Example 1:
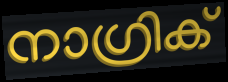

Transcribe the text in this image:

നാഗ്രിക്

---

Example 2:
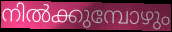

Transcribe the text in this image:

നിൽക്കുമ്പോഴും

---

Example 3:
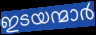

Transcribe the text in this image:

ഇടയന്മാർ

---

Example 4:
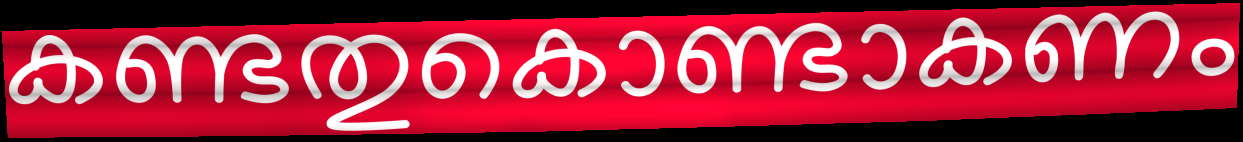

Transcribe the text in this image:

കണ്ടതുകൊണ്ടാകണം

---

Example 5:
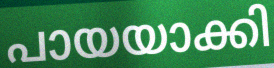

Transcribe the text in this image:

പായയാക്കി